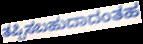
ತಪ್ಪಿಸಬಹುದಾದಂತಹ